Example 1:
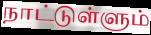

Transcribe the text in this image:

நாட்டுள்ளும்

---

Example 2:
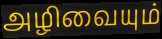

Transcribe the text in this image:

அழிவையும்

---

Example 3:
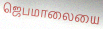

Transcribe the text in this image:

ஜெபமாலையை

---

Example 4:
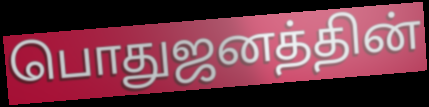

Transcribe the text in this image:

பொதுஜனத்தின்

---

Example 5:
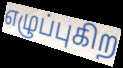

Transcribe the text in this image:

எழுப்புகிற